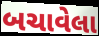
બચાવેલા